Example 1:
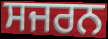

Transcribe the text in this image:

ਸਜਰਨ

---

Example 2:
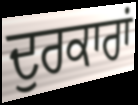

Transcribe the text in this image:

ਦੁਰਕਾਰਾਂ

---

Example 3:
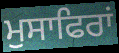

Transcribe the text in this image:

ਮੁਸਾਫਿਰਾਂ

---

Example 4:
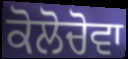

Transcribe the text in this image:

ਕੋਲੋਚੋਵਾ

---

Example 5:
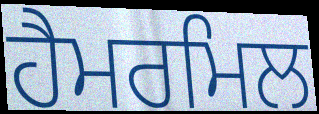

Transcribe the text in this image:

ਹੈਮਰਮਿਲ